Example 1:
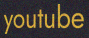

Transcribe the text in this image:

youtube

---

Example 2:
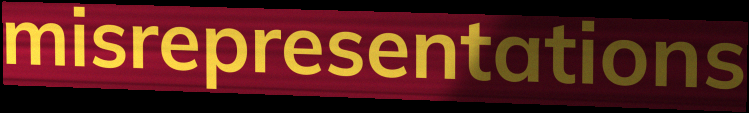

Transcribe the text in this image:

misrepresentations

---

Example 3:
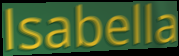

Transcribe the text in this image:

Isabella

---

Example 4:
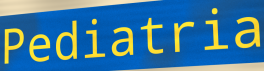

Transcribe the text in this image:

Pediatria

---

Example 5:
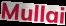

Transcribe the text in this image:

Mullai